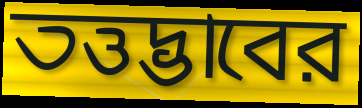
তত্তদ্ভাবের